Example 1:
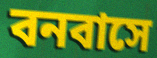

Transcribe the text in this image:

বনবাসে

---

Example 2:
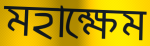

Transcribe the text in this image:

মহাক্ষেম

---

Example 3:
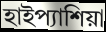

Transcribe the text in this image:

হাইপ্যাশিয়া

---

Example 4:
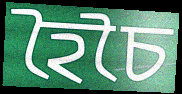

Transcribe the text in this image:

হৈচৈ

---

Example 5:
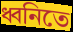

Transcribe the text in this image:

ধ্বনিতে